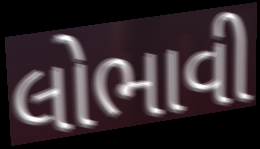
લોભાવી